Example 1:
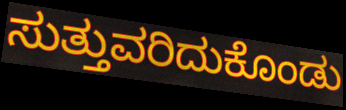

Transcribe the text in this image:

ಸುತ್ತುವರಿದುಕೊಂಡು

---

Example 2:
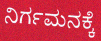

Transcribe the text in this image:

ನಿರ್ಗಮನಕ್ಕೆ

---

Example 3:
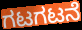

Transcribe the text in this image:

ಗಟಗಟನೆ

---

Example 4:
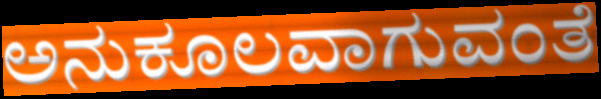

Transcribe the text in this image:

ಅನುಕೂಲವಾಗುವಂತೆ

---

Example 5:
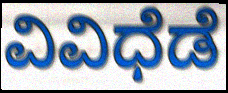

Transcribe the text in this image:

ವಿವಿಧೆಡೆ